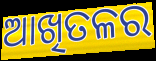
ଆଖିତଳର